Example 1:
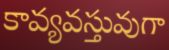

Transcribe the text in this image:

కావ్యవస్తువుగా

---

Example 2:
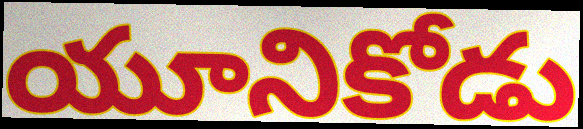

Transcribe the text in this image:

యూనికోడు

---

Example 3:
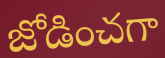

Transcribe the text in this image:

జోడించగా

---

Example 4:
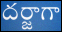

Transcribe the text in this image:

దర్జాగా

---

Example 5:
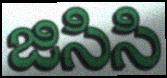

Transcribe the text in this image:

జిసిసి